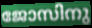
ജോസിനു